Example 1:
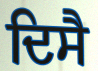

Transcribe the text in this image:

ਦਿਸੈ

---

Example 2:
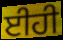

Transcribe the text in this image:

ਈਹੀ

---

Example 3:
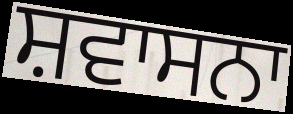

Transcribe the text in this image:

ਸ਼ਵਾਸਨਾ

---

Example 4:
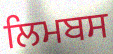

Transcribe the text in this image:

ਲਿਮਬਸ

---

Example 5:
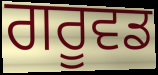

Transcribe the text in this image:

ਗਰੂਵਡ